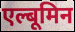
एल्बूमिन